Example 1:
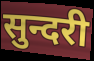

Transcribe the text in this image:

सुन्दरी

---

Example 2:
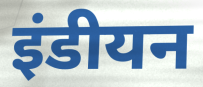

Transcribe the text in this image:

इंडीयन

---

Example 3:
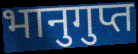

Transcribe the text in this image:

भानुगुप्त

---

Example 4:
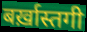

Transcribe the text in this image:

बर्ख़ास्तगी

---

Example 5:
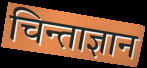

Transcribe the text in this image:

चिन्ताज्ञान